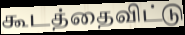
கூடத்தைவிட்டு